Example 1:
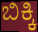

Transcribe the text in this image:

ಬಿಕ್ಕಿ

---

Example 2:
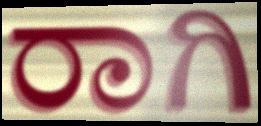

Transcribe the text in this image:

ರಾಗಿ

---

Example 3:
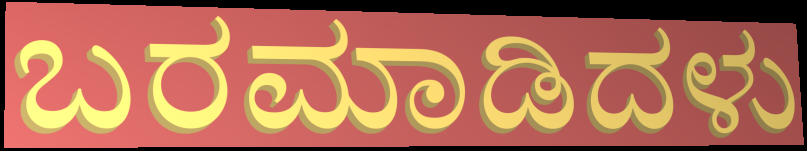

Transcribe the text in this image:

ಬರಮಾಡಿದಳು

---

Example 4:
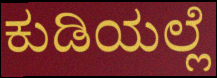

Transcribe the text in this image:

ಕುಡಿಯಲ್ಲೆ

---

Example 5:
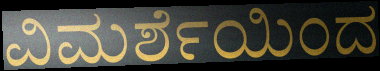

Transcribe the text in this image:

ವಿಮರ್ಶೆಯಿಂದ